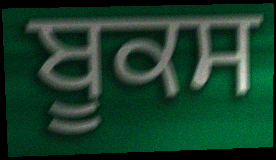
ਬੂਕਸ